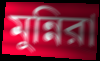
মুন্নিরা